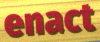
enact